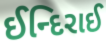
ઈન્દિરાઈ